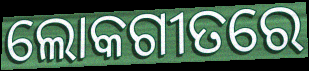
ଲୋକଗୀତରେ